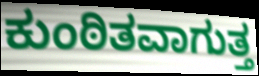
ಕುಂಠಿತವಾಗುತ್ತ